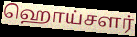
ஹொய்சளர்